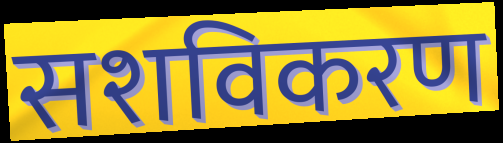
सशविकरण